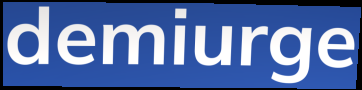
demiurge